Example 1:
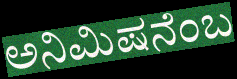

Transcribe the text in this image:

ಅನಿಮಿಷನೆಂಬ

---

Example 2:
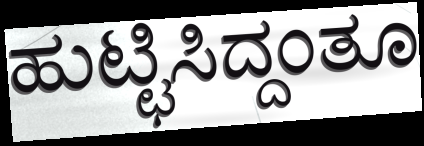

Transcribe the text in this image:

ಹುಟ್ಟಿಸಿದ್ದಂತೂ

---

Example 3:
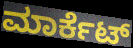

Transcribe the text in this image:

ಮಾರ್ಕೆಟ್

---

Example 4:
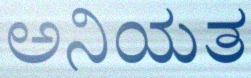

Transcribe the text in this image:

ಅನಿಯತ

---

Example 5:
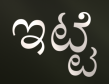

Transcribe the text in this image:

ಇಟ್ಟೆ